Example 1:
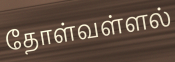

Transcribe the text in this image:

தோள்வள்ளல்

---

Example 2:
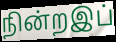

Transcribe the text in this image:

நின்றஇப்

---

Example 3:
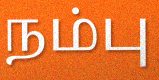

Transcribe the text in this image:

நம்பு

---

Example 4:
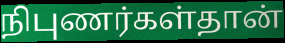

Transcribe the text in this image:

நிபுணர்கள்தான்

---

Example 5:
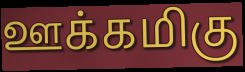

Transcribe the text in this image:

ஊக்கமிகு